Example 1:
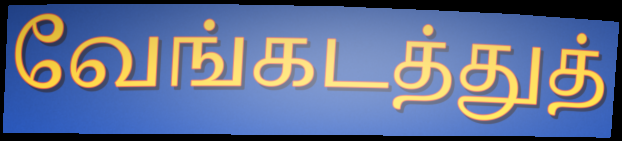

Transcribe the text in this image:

வேங்கடத்துத்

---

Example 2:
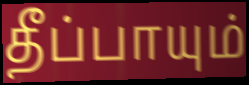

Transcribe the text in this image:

தீப்பாயும்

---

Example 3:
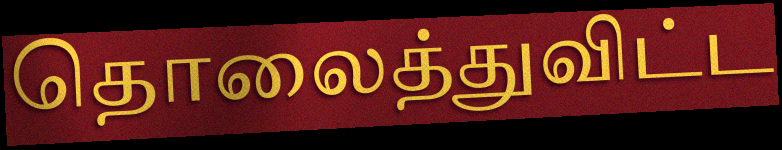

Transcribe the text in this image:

தொலைத்துவிட்ட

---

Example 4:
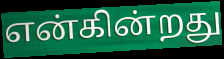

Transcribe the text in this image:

என்கின்றது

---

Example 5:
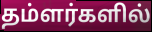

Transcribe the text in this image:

தம்ளர்களில்